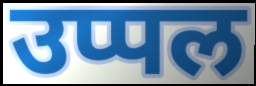
उप्पल